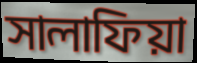
সালাফিয়া